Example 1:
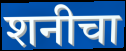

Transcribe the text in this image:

शनीचा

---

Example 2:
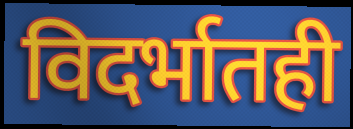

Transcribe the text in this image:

विदर्भातही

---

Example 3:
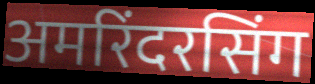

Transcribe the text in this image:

अमरिंदरसिंग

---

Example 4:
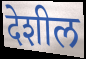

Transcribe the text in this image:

देशील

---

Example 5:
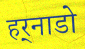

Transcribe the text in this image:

हर्नाडो